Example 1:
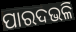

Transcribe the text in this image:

ପାରଦଭଳି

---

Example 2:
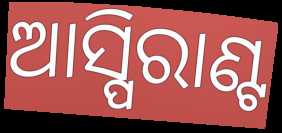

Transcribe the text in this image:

ଆସ୍ପିରାଣ୍ଟ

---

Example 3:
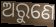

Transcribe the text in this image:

ଅରୁଣେ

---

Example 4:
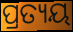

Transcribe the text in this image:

ପ୍ରତ୍ୟୟ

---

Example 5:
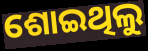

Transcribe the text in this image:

ଶୋଇଥିଲୁ